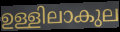
ഉള്ളിലാകുല